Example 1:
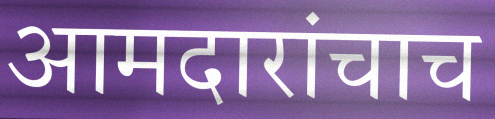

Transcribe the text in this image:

आमदारांचाच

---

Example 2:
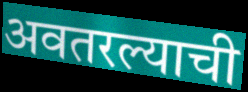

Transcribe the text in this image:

अवतरल्याची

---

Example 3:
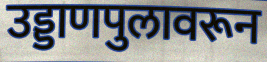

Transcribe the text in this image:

उड्डाणपुलावरून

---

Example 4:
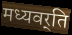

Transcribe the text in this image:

मध्यवर्ति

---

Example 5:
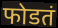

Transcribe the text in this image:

फोडतं